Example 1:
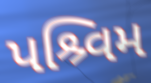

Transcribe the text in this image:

પશ્ર્વિમ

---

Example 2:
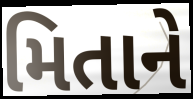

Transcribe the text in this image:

મિતાને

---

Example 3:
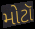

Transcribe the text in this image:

મોટૉ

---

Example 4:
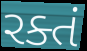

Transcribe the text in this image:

રક્તં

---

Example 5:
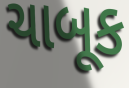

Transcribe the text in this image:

ચાબૂક